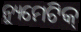
ନ୍ୟୁମେଟିକ୍